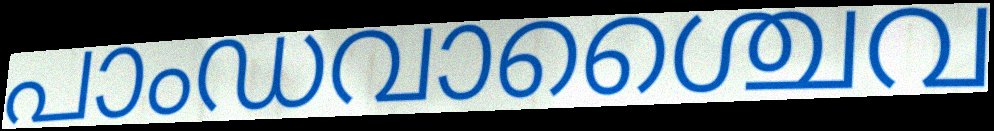
പാംഡവാശ്ചൈവ